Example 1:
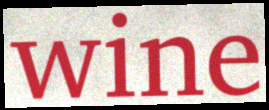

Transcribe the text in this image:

wine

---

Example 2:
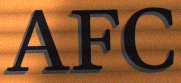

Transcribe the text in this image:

AFC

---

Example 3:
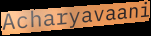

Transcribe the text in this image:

Acharyavaani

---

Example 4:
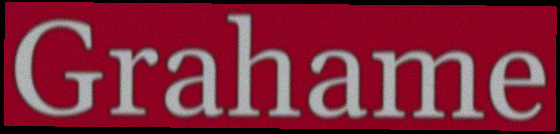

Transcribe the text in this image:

Grahame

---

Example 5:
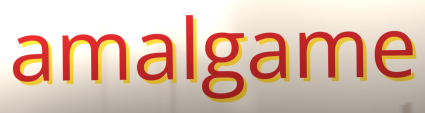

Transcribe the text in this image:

amalgame